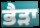
ਭੈੜਾ